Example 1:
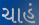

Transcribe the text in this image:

ચાહં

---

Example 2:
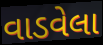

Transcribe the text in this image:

વાડવેલા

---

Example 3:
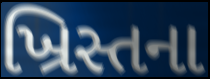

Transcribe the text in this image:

ખ્રિસ્તના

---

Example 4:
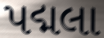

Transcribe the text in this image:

પદ્મલા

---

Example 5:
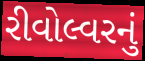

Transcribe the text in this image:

રીવોલ્વરનું